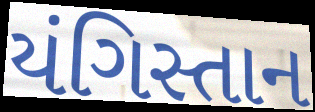
યંગિસ્તાન